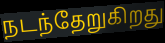
நடந்தேறுகிறது